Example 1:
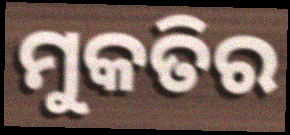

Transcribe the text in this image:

ମୁକତିର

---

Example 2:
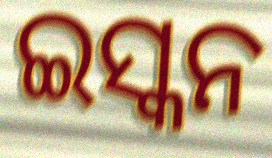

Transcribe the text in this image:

ଇସ୍କନ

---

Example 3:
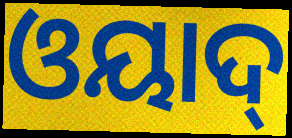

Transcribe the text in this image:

ଓୟାଦ୍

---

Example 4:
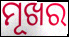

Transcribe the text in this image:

ମୂଖର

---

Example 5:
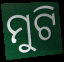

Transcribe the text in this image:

ମୁଟି